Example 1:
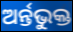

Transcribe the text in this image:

ଅର୍ନ୍ତଭୁକ୍ତ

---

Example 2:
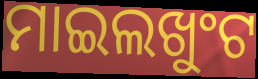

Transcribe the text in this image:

ମାଇଲଖୁଂଟ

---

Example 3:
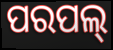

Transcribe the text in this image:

ପରପଲ୍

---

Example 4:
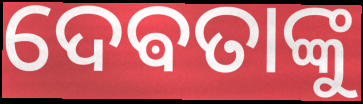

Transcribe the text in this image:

ଦେଵତାଙ୍କୁ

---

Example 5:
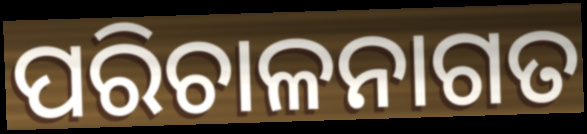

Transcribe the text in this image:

ପରିଚାଳନାଗତ